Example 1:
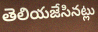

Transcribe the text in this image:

తెలియజేసినట్లు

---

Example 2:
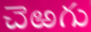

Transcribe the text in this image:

చెఱగు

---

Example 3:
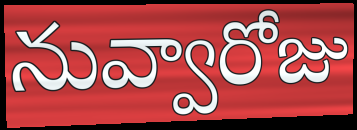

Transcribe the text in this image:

నువ్వారోజు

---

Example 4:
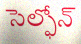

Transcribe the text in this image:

సెల్ఫోన్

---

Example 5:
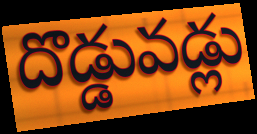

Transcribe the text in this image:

దొడ్డువడ్లు